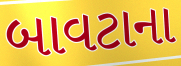
બાવટાના